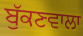
ਬੁੱਕਣਵਾਲਾ